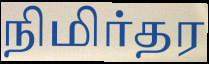
நிமிர்தர